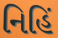
નિહિં